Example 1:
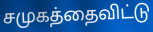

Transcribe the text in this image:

சமுகத்தைவிட்டு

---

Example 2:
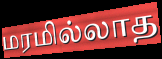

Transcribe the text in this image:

மரமில்லாத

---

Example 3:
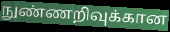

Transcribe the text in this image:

நுண்ணறிவுக்கான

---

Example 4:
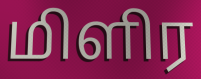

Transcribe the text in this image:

மிளிர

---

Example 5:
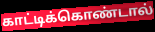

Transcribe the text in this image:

காட்டிக்கொண்டால்